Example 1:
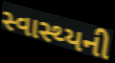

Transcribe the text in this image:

સ્વાસ્થ્યની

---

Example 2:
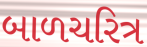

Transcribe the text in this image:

બાળચરિત્ર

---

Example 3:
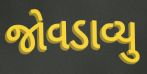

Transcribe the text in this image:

જોવડાવ્યુ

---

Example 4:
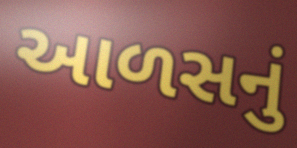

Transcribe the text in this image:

આળસનું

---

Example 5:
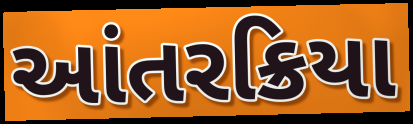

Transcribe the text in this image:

આંતરક્રિયા